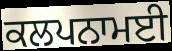
ਕਲਪਨਾਮਈ